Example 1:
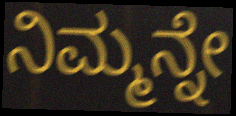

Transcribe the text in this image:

ನಿಮ್ಮನ್ನೇ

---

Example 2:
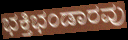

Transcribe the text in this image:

ಭಕ್ತಿಭಂಡಾರವು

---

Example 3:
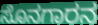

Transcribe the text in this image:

ಸೊನಗಾರನ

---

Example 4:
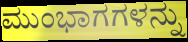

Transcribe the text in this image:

ಮುಂಭಾಗಗಳನ್ನು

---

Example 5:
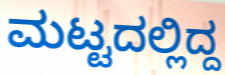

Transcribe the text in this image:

ಮಟ್ಟದಲ್ಲಿದ್ದ